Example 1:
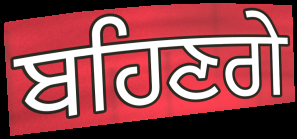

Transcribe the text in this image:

ਬਹਿਣਗੇ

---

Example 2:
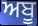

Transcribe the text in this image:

ਅਬੂ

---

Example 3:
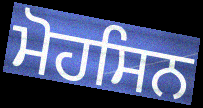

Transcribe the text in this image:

ਮੋਹਸਿਨ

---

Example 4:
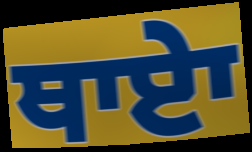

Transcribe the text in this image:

ਥਾਏਾ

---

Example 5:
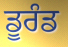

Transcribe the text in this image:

ਡੂਰੰਡ